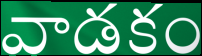
వాడకం